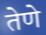
तेणे